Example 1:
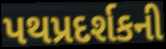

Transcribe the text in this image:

પથપ્રદર્શકની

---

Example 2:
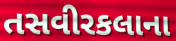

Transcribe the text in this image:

તસવીરકલાના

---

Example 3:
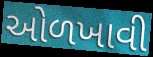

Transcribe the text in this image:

ઓળખાવી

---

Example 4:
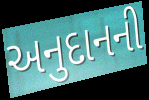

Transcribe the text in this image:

અનુદાનની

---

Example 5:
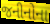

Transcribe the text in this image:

જનીનોના